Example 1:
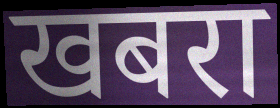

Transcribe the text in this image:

खबरा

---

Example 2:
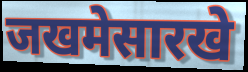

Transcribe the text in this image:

जखमेसारखे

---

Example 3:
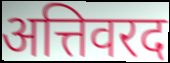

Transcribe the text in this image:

अत्तिवरद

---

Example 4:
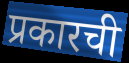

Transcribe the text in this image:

प्रकारची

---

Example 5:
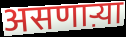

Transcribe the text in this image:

असणाऱ्‍या